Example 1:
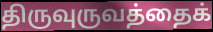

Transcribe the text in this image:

திருவுருவத்தைக்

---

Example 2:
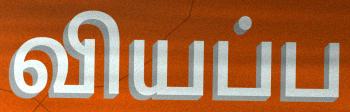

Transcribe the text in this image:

வியப்ப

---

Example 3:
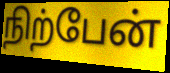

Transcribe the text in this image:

நிற்பேன்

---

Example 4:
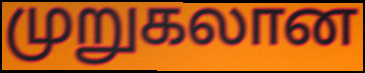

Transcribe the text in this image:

முறுகலான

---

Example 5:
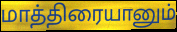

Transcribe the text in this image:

மாத்திரையானும்